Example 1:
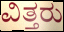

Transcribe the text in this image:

ವಿತ್ತರು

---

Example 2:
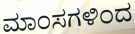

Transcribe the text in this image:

ಮಾಂಸಗಳಿಂದ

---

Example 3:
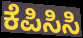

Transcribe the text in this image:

ಕೆಪಿಸಿಸಿ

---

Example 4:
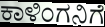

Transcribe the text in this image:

ಕಾಳಿಂಗನಿಗೆ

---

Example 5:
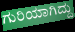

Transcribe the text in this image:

ಗುರಿಯಾಗಿದ್ದು